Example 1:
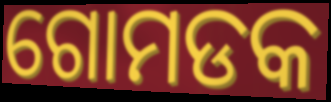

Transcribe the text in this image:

ଗୋମଡକ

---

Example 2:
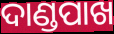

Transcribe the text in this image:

ଦାଣ୍ଡପାଖ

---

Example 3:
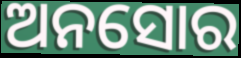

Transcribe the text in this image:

ଅନସୋର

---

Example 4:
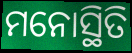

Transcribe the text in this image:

ମନୋସ୍ଥିତି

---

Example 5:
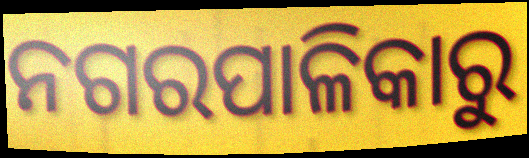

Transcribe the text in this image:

ନଗରପାଳିକାରୁ